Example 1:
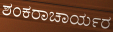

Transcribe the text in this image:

ಶಂಕರಾಚಾರ್ಯರ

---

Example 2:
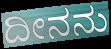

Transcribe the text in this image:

ದೀನನು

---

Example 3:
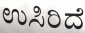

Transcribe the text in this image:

ಉಸಿರಿದೆ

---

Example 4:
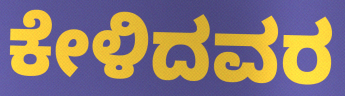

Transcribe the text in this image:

ಕೇಳಿದವರ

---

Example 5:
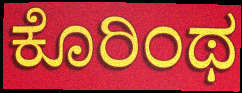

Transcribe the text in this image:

ಕೊರಿಂಥ